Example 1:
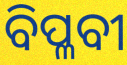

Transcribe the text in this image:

ବିପ୍ଳବୀ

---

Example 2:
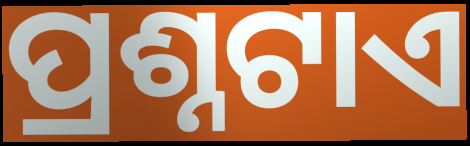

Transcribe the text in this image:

ପ୍ରଶ୍ନଟାଏ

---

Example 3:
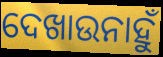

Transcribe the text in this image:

ଦେଖାଉନାହୁଁ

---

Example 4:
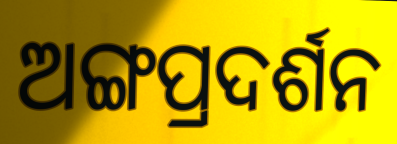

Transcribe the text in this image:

ଅଙ୍ଗପ୍ରଦର୍ଶନ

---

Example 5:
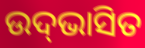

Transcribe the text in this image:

ଉଦ୍‌ଭାସିତ